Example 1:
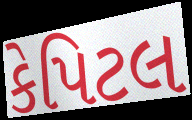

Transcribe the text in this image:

કેપિટલ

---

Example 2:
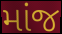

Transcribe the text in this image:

માંજ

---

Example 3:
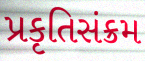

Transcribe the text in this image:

પ્રકૃતિસંક્રમ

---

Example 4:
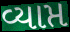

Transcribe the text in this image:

વ્યાપ્ત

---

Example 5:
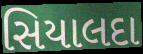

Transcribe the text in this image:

સિયાલદા